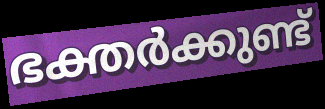
ഭക്തർക്കുണ്ട്